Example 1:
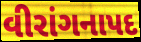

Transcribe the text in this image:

વીરાંગનાપદ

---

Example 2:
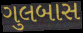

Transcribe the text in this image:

ગુલબાસ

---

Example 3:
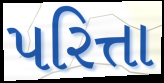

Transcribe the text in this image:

પરિત્તા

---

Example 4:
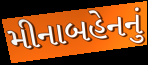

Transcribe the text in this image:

મીનાબહેનનું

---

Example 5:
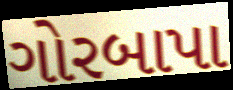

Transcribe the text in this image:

ગોરબાપા